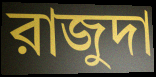
রাজুদা